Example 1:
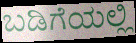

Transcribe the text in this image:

ಬಡಿಗೆಯಲ್ಲಿ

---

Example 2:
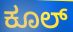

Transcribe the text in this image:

ಕೂಲ್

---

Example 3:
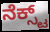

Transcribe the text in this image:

ನೆಕ್ಸ್ಟ್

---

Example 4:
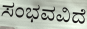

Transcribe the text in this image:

ಸಂಭವವಿದೆ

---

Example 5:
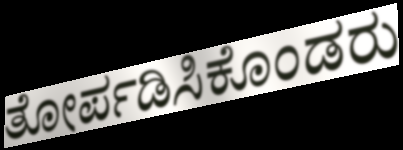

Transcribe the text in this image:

ತೋರ್ಪಡಿಸಿಕೊಂಡರು